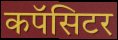
कपॅसिटर